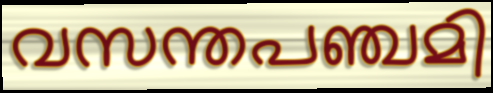
വസന്തപഞ്ചമി